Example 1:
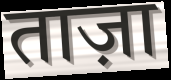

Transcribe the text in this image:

ताज़ा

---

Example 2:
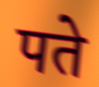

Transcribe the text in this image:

पते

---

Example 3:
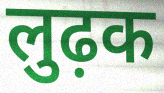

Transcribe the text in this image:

लुढ़क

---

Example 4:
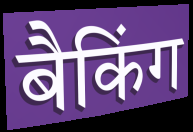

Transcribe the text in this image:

बैकिंग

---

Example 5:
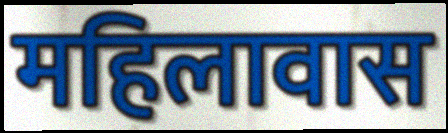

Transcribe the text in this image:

महिलावास